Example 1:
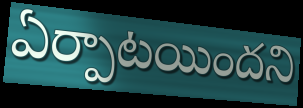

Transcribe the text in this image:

ఏర్పాటయిందని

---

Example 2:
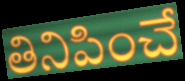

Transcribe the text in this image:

తినిపించే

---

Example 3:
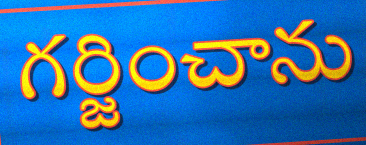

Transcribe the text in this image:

గర్జించాను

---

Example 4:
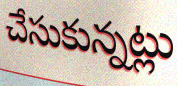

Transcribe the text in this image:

చేసుకున్నట్లు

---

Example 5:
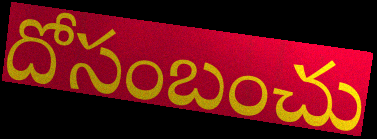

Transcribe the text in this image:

దోసంబంచు